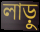
লাড়ু